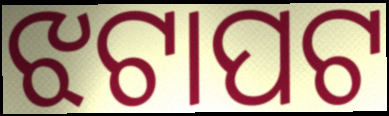
ଝଟାପଟ